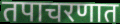
तपाचरणात